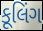
કૂલિંગ